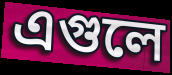
এগুলে